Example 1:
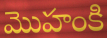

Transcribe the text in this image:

మొహంకి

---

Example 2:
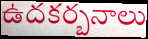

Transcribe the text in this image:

ఉదకర్బనాలు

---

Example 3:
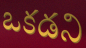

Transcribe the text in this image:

ఒకడని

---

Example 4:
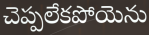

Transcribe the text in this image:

చెప్పలేకపోయెను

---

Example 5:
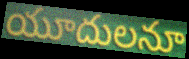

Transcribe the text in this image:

యూదులనూ